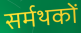
सर्मथकों